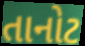
તાનોટ